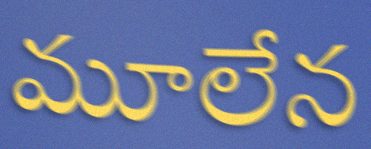
మూలేన